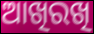
ଆଖିରଖି